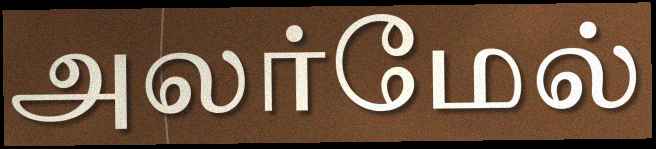
அலர்மேல்